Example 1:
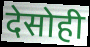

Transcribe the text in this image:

देसोही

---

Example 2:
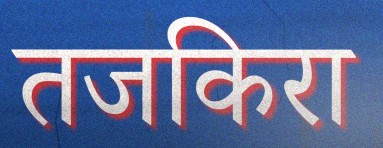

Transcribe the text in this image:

तजकिरा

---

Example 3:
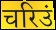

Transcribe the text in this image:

चरिउं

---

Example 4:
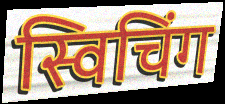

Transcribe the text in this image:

स्विचिंग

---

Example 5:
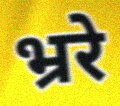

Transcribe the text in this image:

भ्ररे